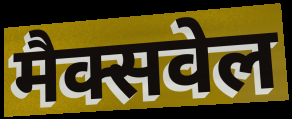
मैक्सवेल